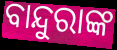
ବାନ୍ଦୁରାଙ୍କ